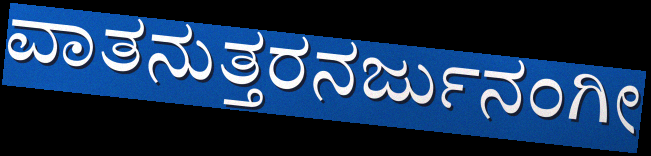
ವಾತನುತ್ತರನರ್ಜುನಂಗೀ